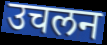
उचलन